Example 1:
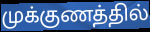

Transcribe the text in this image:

முக்குணத்தில்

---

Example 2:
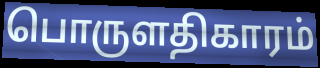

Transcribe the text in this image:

பொருளதிகாரம்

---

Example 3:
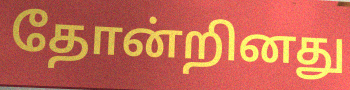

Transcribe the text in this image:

தோன்றினது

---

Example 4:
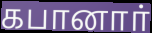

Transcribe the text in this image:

கபானார்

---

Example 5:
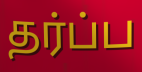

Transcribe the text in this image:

தர்ப்ப